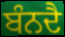
ਬੰਨਦੈ